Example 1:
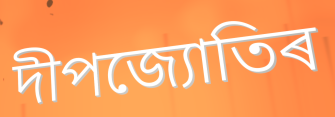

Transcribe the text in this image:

দীপজ্যোতিৰ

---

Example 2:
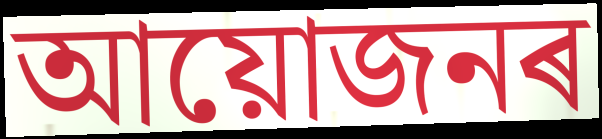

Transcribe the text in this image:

আয়োজনৰ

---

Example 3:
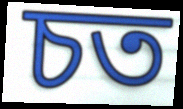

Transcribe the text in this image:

চত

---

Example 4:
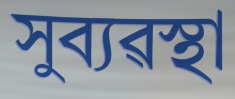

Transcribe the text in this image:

সুব্যৱস্থা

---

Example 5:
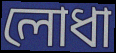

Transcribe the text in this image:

লোধা